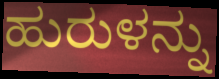
ಹುರುಳನ್ನು